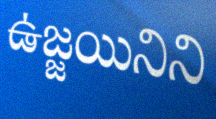
ఉజ్జయినిని